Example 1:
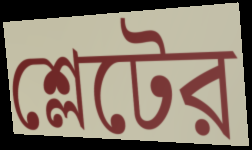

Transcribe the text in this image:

শ্লেটের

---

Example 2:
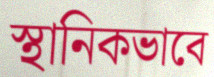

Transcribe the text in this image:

স্থানিকভাবে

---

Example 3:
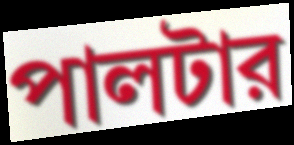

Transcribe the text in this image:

পালটার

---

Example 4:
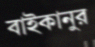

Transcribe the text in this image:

বাইকানুর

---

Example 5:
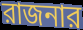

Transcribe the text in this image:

রাজনার